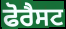
ਫੋਰੈਸਟ